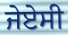
ਜੇਏਸੀ